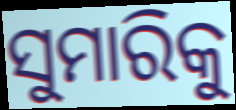
ସୁମାରିକୁ